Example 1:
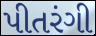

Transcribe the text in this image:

પીતરંગી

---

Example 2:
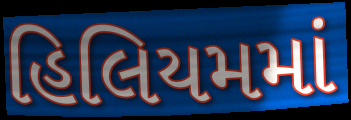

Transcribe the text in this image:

હિલિયમમાં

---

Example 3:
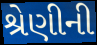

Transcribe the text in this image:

શ્રેણીની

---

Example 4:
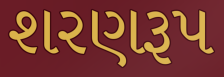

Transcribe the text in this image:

શરણરૂપ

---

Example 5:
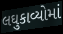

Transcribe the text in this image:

લઘુકાવ્યોમાં